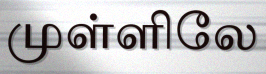
முள்ளிலே